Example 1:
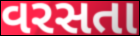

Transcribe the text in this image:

વરસતા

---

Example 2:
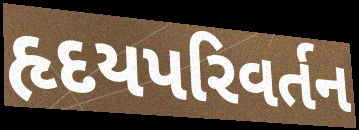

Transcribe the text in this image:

હૃદયપરિવર્તન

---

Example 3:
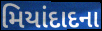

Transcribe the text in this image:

મિયાંદાદના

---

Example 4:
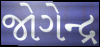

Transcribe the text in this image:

જોગેન્દ્ર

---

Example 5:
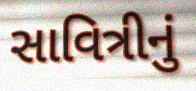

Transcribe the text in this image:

સાવિત્રીનું